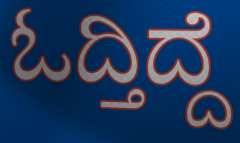
ಓದ್ತಿದ್ದೆ